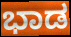
ಭಾಡ